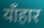
याँहार